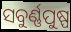
ସବୁର୍ଣ୍ଣପୁଷ୍ପ